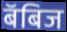
बॅबिज